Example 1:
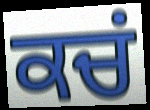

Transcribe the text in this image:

ਕਚਂ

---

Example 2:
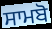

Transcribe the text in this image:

ਸਾਮਬੋ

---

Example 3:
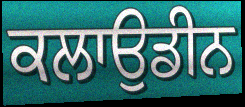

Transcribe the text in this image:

ਕਲਾਉਡੀਨ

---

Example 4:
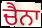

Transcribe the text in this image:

ਚੈਨਾ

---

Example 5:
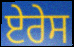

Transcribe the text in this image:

ਏਰੇਸ